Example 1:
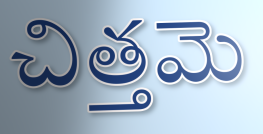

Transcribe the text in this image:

చిత్తమె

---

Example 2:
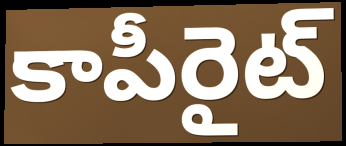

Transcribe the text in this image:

కాపీరైట్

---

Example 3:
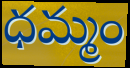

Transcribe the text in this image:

ధమ్మం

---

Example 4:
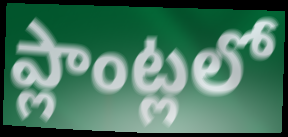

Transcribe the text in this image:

ప్లాంట్లలో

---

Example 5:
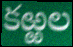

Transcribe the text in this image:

కఱ్ఱల